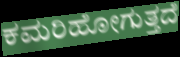
ಕಮರಿಹೋಗುತ್ತದೆ